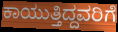
ಕಾಯುತ್ತಿದ್ದವರಿಗೆ